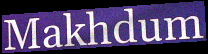
Makhdum